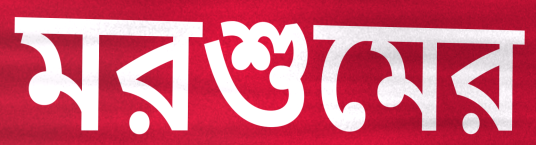
মরশুমের